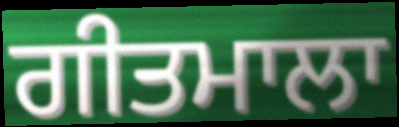
ਗੀਤਮਾਲਾ